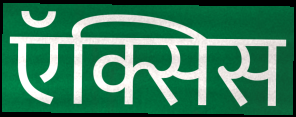
ऍक्सिस